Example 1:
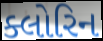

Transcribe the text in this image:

ક્લોરિન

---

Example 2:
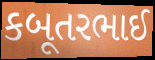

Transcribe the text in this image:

કબૂતરભાઈ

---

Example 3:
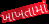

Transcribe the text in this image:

ખાખતામાં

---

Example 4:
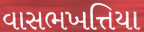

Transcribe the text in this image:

વાસભખત્તિયા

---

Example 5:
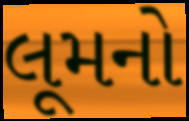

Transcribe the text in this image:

લૂમનો